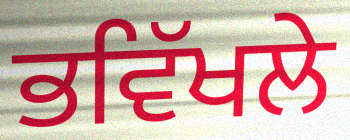
ਭਵਿੱਖਲੇ